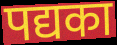
पद्यका